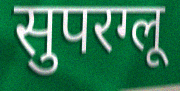
सुपरग्लू